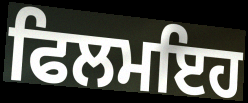
ਫਿਲਮਇਹ